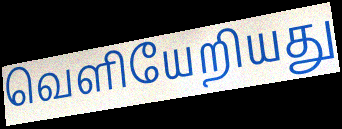
வெளியேறியது